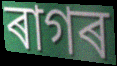
ৰাগৰ